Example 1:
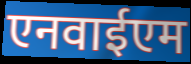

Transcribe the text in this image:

एनवाईएम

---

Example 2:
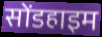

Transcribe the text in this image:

सोंडहाइम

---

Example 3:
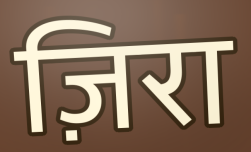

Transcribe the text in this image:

ज़िरा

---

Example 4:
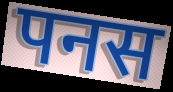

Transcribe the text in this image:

पनस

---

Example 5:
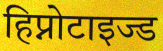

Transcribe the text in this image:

हिप्नोटाइज्ड